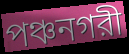
পঞ্চনগরী